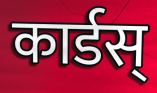
कार्डस्